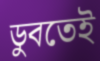
ডুবতেই